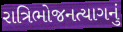
રાત્રિભોજનત્યાગનું